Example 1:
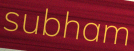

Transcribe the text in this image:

subham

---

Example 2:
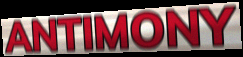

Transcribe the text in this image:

ANTIMONY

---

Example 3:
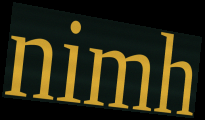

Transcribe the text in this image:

nimh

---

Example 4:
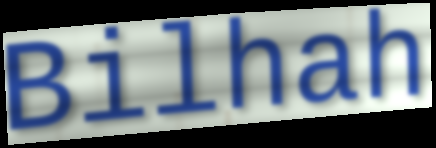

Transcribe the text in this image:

Bilhah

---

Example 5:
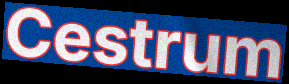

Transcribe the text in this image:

Cestrum